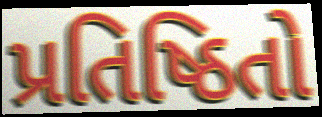
પ્રતિષ્ઠિતો